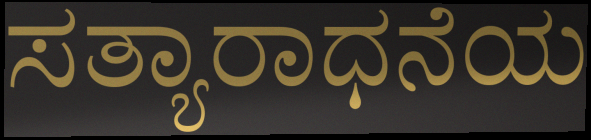
ಸತ್ಯಾರಾಧನೆಯ